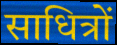
साधित्रों